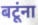
बटूंना